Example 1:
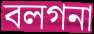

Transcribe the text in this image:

বলগনা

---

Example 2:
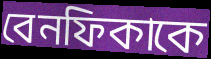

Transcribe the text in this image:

বেনফিকাকে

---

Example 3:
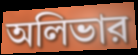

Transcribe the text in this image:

অলিভার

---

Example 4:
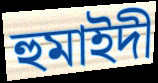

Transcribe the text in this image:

হুমাইদী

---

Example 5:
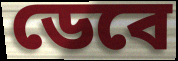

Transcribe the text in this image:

ডেবে